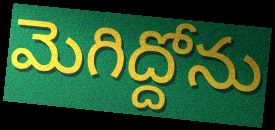
మెగిద్దోను